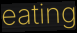
eating